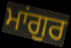
ਮਾਂਗੁਰ